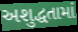
અશુદ્ધતામાં